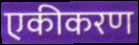
एकीकरण